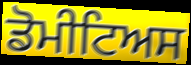
ਡੋਮੀਟਿਅਸ